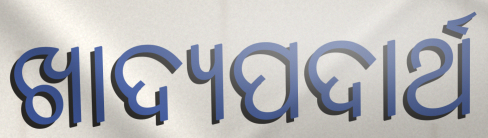
ଖାଦ୍ୟପଦାର୍ଥ